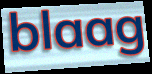
blaag